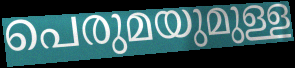
പെരുമയുമുള്ള